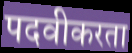
पदवीकरता